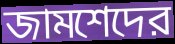
জামশেদের